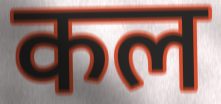
कल